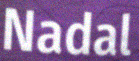
Nadal